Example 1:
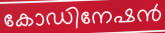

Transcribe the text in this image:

കോഡിനേഷൻ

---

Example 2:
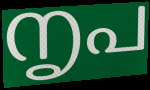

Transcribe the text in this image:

നൃപ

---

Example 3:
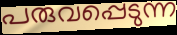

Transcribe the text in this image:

പരുവപ്പെടുന്ന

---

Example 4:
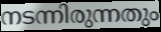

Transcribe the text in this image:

നടന്നിരുന്നതും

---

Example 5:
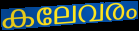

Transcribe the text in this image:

കലേവരം